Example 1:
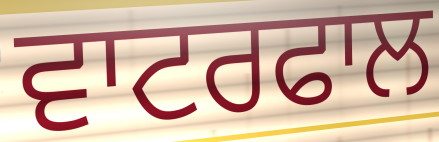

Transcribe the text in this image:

ਵਾਟਰਫਾਲ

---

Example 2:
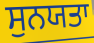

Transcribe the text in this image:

ਸੁਨਯਤਾ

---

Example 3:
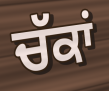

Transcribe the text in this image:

ਚੱਕਾਂ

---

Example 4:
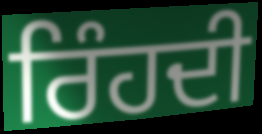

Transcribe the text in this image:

ਰਿੰਹਦੀ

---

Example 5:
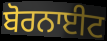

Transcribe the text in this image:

ਬੋਰਨਾਈਟ